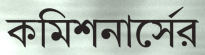
কমিশনার্সের